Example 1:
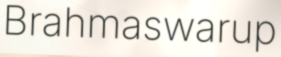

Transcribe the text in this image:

Brahmaswarup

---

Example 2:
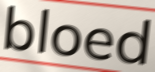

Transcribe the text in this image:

bloed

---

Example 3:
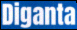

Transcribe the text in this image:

Diganta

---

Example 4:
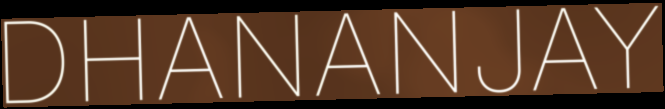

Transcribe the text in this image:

DHANANJAY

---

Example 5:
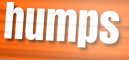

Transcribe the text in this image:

humps